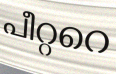
പീറ്ററെ